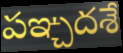
పఞ్చదశే